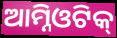
ଆମ୍ନିଓଟିକ୍